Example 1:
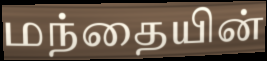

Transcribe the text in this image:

மந்தையின்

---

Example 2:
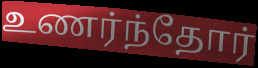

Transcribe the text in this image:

உணர்ந்தோர்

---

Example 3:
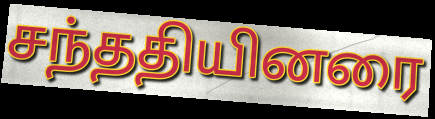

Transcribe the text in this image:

சந்ததியினரை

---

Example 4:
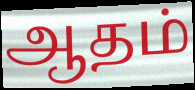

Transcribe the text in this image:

ஆதம்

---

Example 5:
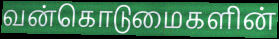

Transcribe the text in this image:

வன்கொடுமைகளின்